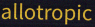
allotropic